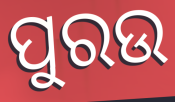
ପୁରଉ